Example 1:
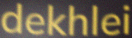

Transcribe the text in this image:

dekhlei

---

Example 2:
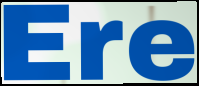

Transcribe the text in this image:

Ere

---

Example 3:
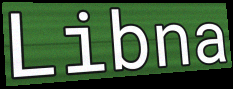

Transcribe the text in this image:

Libna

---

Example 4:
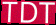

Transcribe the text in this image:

TDT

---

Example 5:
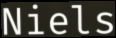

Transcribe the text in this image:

Niels